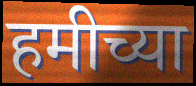
हमीच्या